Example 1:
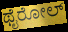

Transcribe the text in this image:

ಥೈರೋಲ್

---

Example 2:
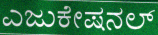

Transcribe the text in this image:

ಎಜುಕೇಷನಲ್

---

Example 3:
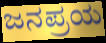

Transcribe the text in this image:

ಜನಪ್ರಯ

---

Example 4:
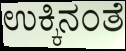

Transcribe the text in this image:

ಉಕ್ಕಿನಂತೆ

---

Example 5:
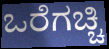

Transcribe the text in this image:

ಒರೆಗಚ್ಚಿ